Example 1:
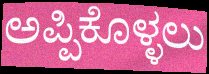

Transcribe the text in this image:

ಅಪ್ಪಿಕೊಳ್ಳಲು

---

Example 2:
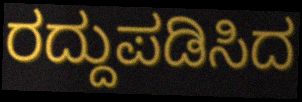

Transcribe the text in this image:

ರದ್ದುಪಡಿಸಿದ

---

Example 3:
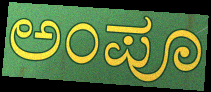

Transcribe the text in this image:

ಅಂಪೂ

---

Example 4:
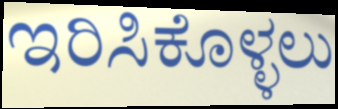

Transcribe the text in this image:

ಇರಿಸಿಕೊಳ್ಳಲು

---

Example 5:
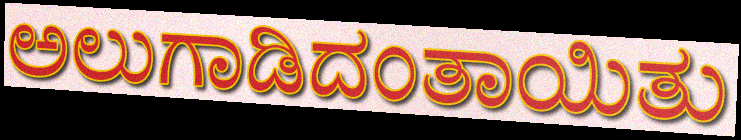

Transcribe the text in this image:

ಅಲುಗಾಡಿದಂತಾಯಿತು